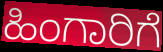
ಹಿಂಗಾರಿಗೆ